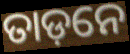
ତାଡ଼ନେ